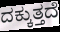
ದಕ್ಕುತ್ತದೆ